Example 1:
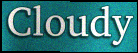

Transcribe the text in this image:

Cloudy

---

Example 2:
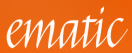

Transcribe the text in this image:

ematic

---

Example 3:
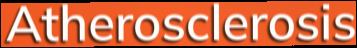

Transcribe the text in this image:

Atherosclerosis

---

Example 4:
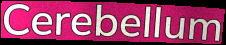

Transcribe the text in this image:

Cerebellum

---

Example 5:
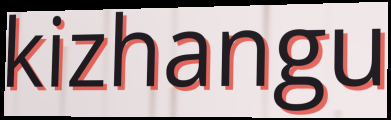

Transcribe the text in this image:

kizhangu